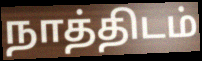
நாத்திடம்